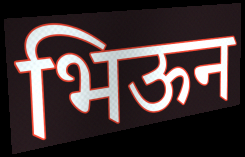
भिऊन